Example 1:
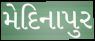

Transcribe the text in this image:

મેદિનાપુર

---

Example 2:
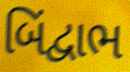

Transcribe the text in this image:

બિંદ્વાભ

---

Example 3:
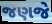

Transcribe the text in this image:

જણજે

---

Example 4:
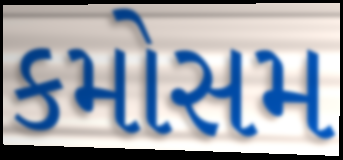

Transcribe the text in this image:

કમોસમ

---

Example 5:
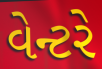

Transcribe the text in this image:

વેન્ટરે